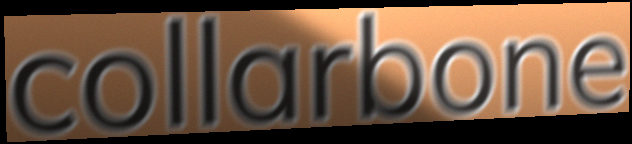
collarbone